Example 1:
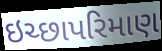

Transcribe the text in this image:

ઇચ્છાપરિમાણ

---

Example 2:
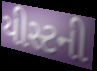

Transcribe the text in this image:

યીસ્ટની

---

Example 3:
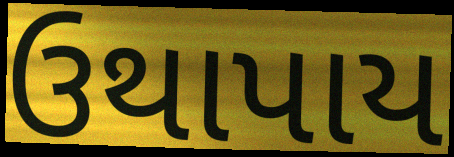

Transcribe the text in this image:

ઉથાપાય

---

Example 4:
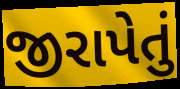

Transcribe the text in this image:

જીરાપેતું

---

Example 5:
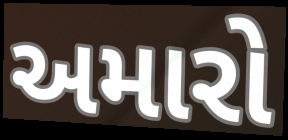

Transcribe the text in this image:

અમારો